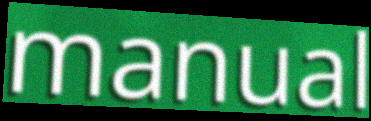
manual